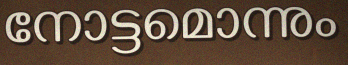
നോട്ടമൊന്നും